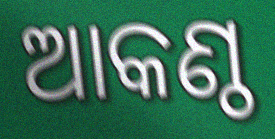
ଆକଣ୍ଠ